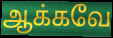
ஆக்கவே